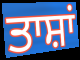
ਤਾਸ਼ਾਂ